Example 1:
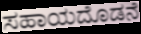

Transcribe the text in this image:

ಸಹಾಯದೊಡನೆ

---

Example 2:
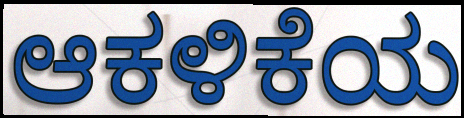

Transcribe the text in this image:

ಆಕಳಿಕೆಯ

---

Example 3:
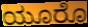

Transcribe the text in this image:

ಯೂರೊ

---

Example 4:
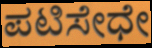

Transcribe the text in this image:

ಪಟಿಸೇಧೇ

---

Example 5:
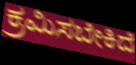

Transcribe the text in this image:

ಕ್ರಮಿಸಬೇಕಿದೆ